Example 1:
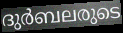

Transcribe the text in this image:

ദുർബലരുടെ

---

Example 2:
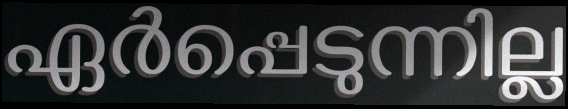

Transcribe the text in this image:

ഏർപ്പെടുന്നില്ല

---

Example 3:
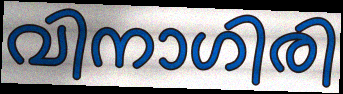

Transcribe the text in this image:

വിനാഗിരി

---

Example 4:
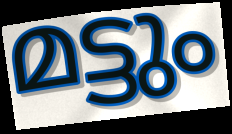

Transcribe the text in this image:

മട്ടും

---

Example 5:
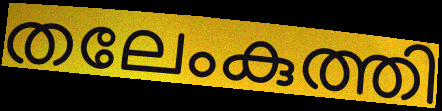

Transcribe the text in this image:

തലേംകുത്തി